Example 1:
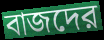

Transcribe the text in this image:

বাজদের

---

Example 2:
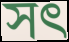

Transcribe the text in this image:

সৎ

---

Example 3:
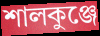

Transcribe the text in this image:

শালকুঞ্জে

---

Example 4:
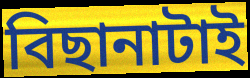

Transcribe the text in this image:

বিছানাটাই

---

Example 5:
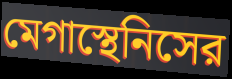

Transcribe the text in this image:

মেগাস্থেনিসের